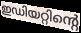
ഇഡിയറ്റിന്റെ